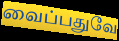
வைப்பதுவே